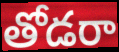
తోడరా